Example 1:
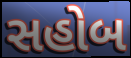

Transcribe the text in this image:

સહોબ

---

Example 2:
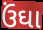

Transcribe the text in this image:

ઉંઘા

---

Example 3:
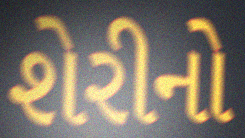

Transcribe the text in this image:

શેરીનો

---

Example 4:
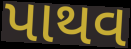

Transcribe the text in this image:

પાથવ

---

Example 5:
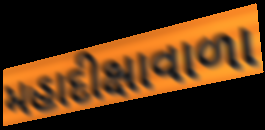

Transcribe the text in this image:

મહાદીક્ષાવાળા